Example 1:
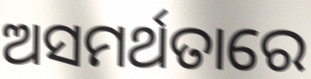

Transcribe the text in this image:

ଅସମର୍ଥତାରେ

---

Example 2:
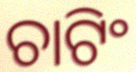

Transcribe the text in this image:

ଚାଟିଂ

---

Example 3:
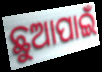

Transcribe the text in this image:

ଛୁଆପାଇଁ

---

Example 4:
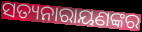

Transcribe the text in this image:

ସତ୍ୟନାରାୟଣଙ୍କର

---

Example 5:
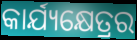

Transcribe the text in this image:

କାର୍ଯ୍ୟକ୍ଷେତ୍ରର